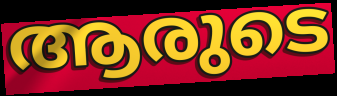
ആരുടെ